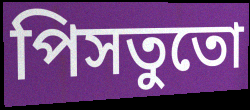
পিসতুতো